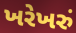
ખરેખરું